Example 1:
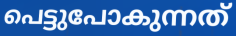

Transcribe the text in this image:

പെട്ടുപോകുന്നത്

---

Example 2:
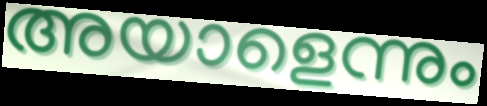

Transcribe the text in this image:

അയാളെന്നും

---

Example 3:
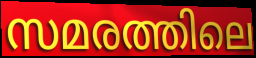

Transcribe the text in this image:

സമരത്തിലെ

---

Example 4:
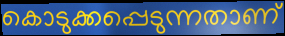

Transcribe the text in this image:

കൊടുക്കപ്പെടുന്നതാണ്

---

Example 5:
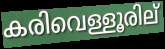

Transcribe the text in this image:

കരിവെള്ളൂരില്